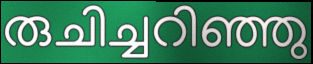
രുചിച്ചറിഞ്ഞു